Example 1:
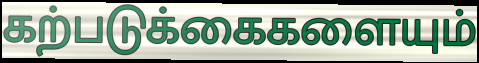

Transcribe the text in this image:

கற்படுக்கைகளையும்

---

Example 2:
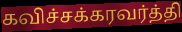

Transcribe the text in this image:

கவிச்சக்கரவர்த்தி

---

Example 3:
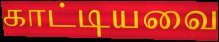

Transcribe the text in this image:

காட்டியவை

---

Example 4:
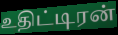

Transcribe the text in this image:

உதிட்டிரன்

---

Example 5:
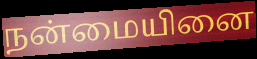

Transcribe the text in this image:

நன்மையினை